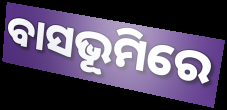
ବାସଭୂମିରେ